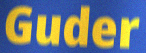
Guder